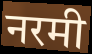
नरमी